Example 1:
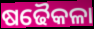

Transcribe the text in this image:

ଷଢୈକଳା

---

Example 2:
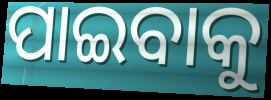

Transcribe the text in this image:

ପାଇବାକୁ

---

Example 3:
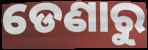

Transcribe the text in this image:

ଡେଣାରୁ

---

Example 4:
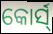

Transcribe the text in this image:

କୋର୍ସ୍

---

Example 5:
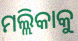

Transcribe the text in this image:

ମଲ୍ଲିକାକୁ